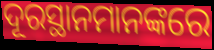
ଦୂରସ୍ଥାନମାନଙ୍କରେ